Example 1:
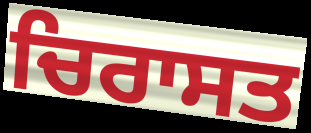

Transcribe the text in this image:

ਚਿਰਾਸਤ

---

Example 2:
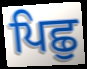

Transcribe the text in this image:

ਪਿਛੁ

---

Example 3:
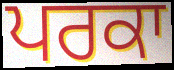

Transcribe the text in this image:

ਪਰਕਾ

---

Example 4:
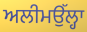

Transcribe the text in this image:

ਅਲੀਮਉੱਲ੍ਹਾ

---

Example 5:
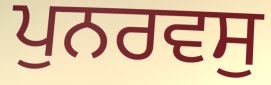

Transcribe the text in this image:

ਪੁਨਰਵਸੁ